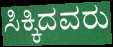
ಸಿಕ್ಕಿದವರು